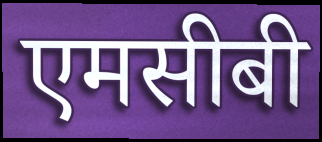
एमसीबी